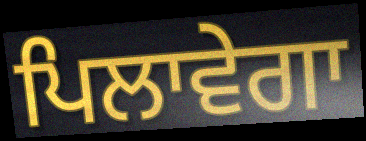
ਪਿਲਾਵੇਗਾ